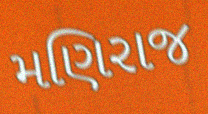
મણિરાજ